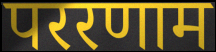
पररणाम